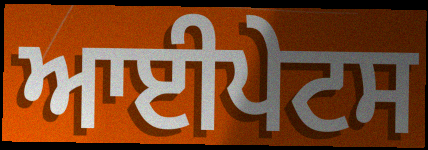
ਆਈਪੇਟਸ